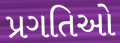
પ્રગતિઓ